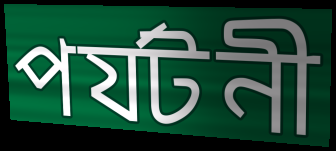
পর্যটনী